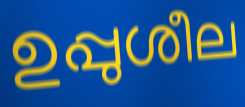
ഉപ്പുശീല